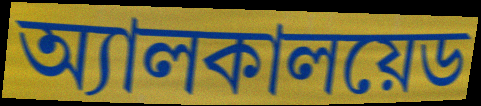
অ্যালকালয়েড